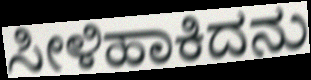
ಸೀಳಿಹಾಕಿದನು